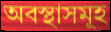
অবস্থাসমূহ